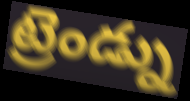
ట్రెండ్ను